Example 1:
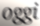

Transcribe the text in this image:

oggi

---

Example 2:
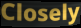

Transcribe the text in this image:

Closely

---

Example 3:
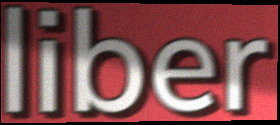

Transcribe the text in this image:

liber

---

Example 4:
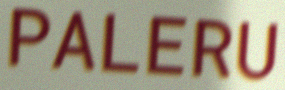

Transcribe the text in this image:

PALERU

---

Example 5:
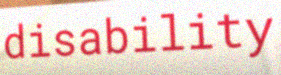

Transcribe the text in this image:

disability